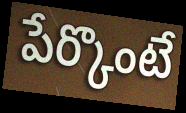
పేర్కొంటే